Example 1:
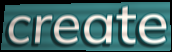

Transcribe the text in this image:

create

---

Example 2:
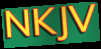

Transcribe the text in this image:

NKJV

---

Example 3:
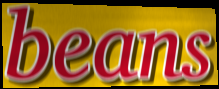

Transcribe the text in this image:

beans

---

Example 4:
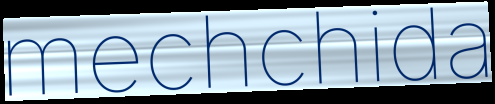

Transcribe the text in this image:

mechchida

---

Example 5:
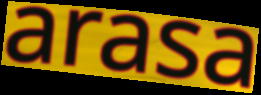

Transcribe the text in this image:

arasa